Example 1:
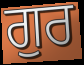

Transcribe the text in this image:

ਗੁਰ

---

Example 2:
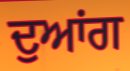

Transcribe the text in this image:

ਦੁਆਂਗ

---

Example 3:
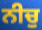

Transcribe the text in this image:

ਨੀਚੁ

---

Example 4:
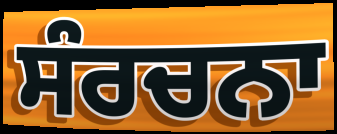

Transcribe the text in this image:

ਸੰਰਚਨਾ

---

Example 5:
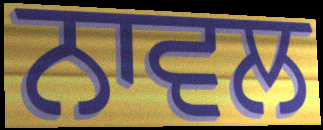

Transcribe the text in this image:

ਨਾਵਲ